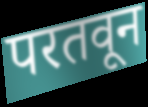
परतवून